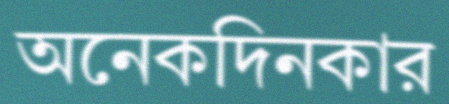
অনেকদিনকার